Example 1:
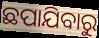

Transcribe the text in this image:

ଛପାଯିବାରୁ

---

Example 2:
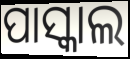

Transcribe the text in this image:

ପାସ୍କାଲ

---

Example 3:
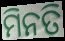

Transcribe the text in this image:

ମିନତି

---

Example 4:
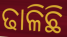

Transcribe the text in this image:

ଢାଳିଛି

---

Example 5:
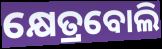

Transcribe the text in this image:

କ୍ଷେତ୍ରବୋଲି